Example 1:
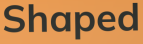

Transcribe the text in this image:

Shaped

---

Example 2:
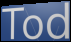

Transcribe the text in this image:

Tod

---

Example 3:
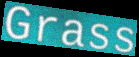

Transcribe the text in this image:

Grass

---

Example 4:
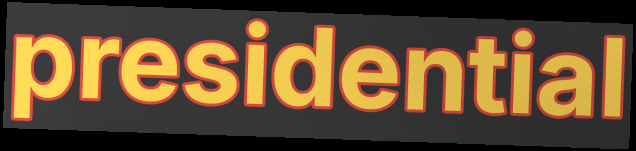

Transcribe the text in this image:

presidential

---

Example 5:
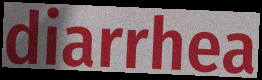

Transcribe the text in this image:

diarrhea